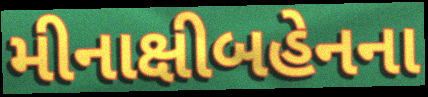
મીનાક્ષીબહેનના